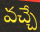
వచ్చే